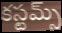
కస్టమ్స్